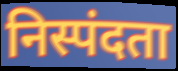
निस्पंदता